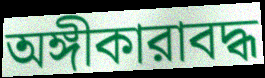
অঙ্গীকারাবদ্ধ